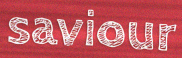
saviour